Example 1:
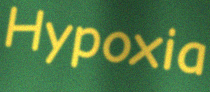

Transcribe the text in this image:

Hypoxia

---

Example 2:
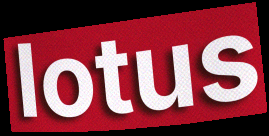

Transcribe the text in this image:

lotus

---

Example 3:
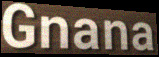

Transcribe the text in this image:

Gnana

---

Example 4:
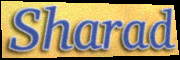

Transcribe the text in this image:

Sharad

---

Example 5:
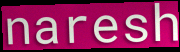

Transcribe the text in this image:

naresh